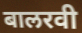
बालरवी